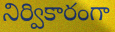
నిర్వికారంగా